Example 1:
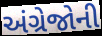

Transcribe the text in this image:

અંગ્રેજોની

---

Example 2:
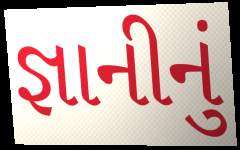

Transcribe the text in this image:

જ્ઞાનીનું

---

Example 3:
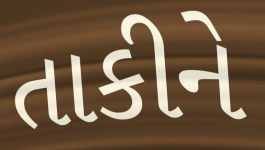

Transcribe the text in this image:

તાકીને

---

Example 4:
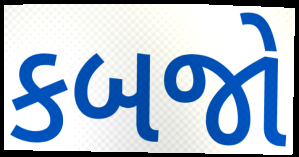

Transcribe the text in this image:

કબજો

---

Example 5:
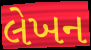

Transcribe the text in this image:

લેખન